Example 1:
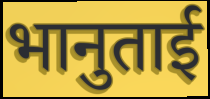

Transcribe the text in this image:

भानुताई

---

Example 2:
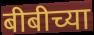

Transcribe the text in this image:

बीबीच्या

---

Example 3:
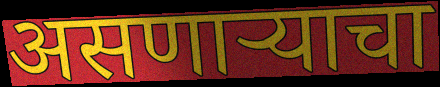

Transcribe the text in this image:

असणाऱ्याचा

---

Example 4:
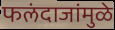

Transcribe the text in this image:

फलंदाजांमुळे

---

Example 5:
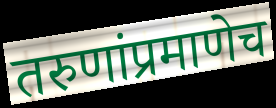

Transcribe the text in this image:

तरुणांप्रमाणेच